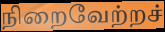
நிறைவேற்றச்